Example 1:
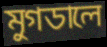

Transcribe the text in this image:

মুগডালে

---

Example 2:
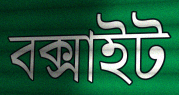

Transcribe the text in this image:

বক্সাইট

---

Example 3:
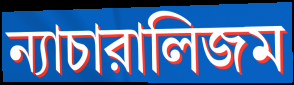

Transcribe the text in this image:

ন্যাচারালিজম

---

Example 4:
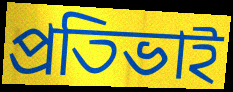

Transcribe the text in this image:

প্রতিভাই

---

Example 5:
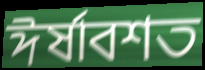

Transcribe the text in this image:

ঈর্ষাবশত